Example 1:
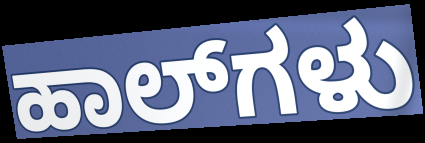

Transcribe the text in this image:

ಹಾಲ್‌ಗಳು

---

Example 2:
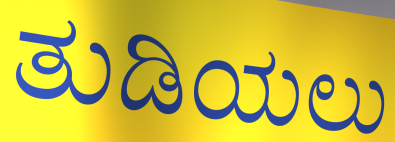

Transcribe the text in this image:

ತುಡಿಯಲು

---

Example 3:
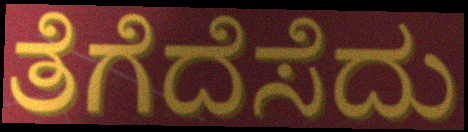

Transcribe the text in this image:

ತೆಗೆದೆಸೆದು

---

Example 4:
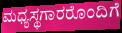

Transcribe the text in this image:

ಮಧ್ಯಸ್ಥಗಾರರೊಂದಿಗೆ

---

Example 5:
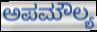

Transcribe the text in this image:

ಅಪಮೌಲ್ಯ